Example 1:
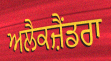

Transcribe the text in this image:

ਅਲੈਕਜ਼ੈਂਡਰਾ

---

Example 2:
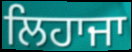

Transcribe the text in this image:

ਲਿਹਾਜਾ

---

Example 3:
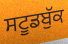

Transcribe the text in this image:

ਸਟੂਡਬੁੱਕ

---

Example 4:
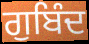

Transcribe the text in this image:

ਗੁਬਿੰਦ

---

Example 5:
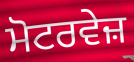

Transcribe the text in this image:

ਮੋਟਰਵੇਜ਼